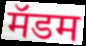
मॅडम